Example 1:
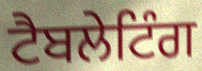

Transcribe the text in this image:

ਟੈਬਲੇਟਿੰਗ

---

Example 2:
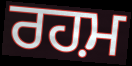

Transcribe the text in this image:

ਰਹ਼ਮ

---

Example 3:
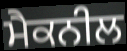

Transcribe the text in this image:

ਮੈਕਨੀਲ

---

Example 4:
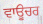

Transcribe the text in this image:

ਵਾਊਚਰ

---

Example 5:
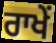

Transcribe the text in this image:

ਰਾਖੇਂ